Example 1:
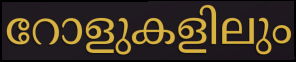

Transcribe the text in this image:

റോളുകളിലും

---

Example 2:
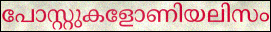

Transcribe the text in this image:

പോസ്റ്റുകളോണിയലിസം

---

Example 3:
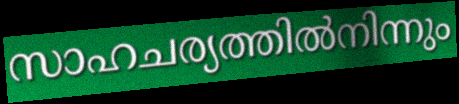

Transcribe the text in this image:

സാഹചര്യത്തിൽനിന്നും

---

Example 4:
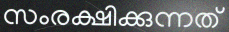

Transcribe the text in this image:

സംരക്ഷിക്കുന്നത്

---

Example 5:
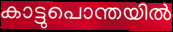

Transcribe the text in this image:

കാട്ടുപൊന്തയിൽ